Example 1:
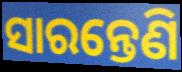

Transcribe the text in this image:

ସାରନ୍ତେଣି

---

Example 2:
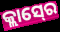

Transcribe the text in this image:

କ୍ଲାସ୍‍ରେ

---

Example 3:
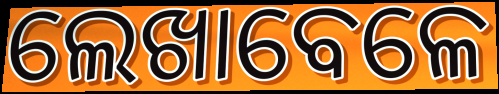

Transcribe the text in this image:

ଲେଖାବେଳେ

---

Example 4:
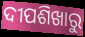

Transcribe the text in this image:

ଦୀପଶିଖାରୁ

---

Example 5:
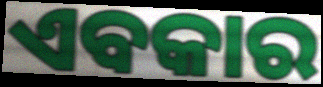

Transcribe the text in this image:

ଏବକାର